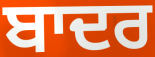
ਬਾਦਰ